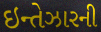
ઇન્તેઝારની